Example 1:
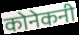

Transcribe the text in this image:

कोनेकनी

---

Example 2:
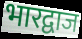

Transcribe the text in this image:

भारद्वाज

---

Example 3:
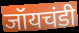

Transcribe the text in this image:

जॉयचंडी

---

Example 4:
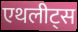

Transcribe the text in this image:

एथलीट्स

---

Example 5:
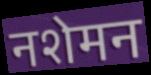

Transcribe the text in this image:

नशेमन